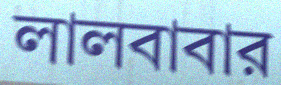
লালবাবার